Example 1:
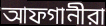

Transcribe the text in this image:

আফগানীরা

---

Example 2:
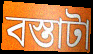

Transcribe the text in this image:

বস্তাটা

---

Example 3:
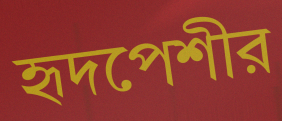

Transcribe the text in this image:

হৃদপেশীর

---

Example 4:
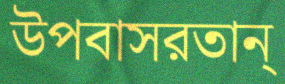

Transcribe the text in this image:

উপবাসরতান্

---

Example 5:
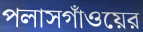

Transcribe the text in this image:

পলাসগাঁওয়ের